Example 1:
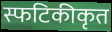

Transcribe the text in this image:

स्फटिकीकृत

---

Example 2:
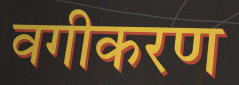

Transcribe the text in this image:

वगीकरण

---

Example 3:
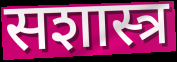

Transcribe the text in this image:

सशास्त्र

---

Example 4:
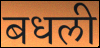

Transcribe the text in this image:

बधली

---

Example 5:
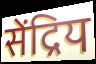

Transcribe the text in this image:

सेंद्रिय